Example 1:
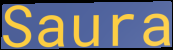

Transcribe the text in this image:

Saura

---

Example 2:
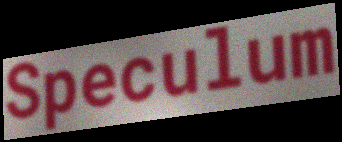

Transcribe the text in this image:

Speculum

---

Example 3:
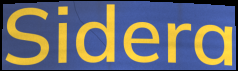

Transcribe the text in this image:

Sidera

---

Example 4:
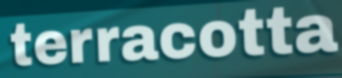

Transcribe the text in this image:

terracotta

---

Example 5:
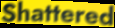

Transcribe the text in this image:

Shattered